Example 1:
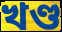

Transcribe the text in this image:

খণ্ড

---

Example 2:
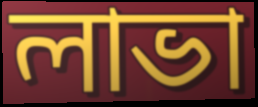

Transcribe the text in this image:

লাভা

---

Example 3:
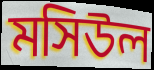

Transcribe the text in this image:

মসিউল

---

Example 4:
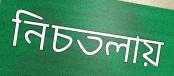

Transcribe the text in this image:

নিচতলায়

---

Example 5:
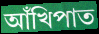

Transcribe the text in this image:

আঁখিপাত